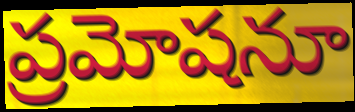
ప్రమోషనూ